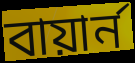
বায়ার্ন